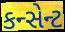
કન્સેન્ટ